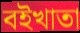
বইখাতা